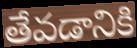
తేవడానికి